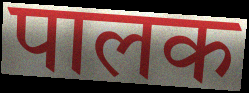
पालक